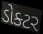
ડોક્ટર